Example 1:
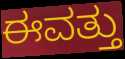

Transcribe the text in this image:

ಈವತ್ತು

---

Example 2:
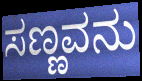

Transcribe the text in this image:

ಸಣ್ಣವನು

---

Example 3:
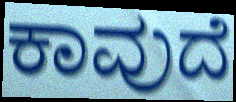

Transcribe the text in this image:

ಕಾವುದೆ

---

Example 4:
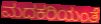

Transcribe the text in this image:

ಮದಕರಿಯಂತೆ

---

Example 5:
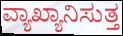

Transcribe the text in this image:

ವ್ಯಾಖ್ಯಾನಿಸುತ್ತ